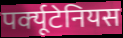
पर्क्यूटेनियस